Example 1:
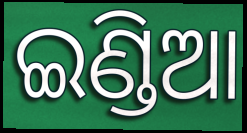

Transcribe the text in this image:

ଇଣ୍ଡିଆ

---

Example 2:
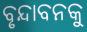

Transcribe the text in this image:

ବୃନ୍ଦାବନକୁ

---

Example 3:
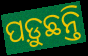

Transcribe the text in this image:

ପଡ଼ୁଛନ୍ତି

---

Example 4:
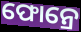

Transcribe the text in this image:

ଫୋନ୍ରେ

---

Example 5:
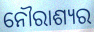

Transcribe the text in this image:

ନୌରାଶ୍ୟର